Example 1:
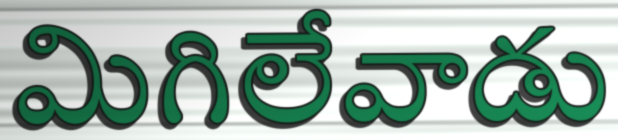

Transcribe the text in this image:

మిగిలేవాడు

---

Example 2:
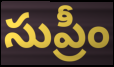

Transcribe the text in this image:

సుప్రీం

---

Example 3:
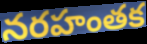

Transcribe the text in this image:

నరహంతక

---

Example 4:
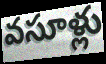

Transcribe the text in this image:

వసూళ్లు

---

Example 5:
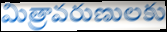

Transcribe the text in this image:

మిత్రావరుణులకు